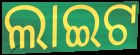
ଲାଇଟ